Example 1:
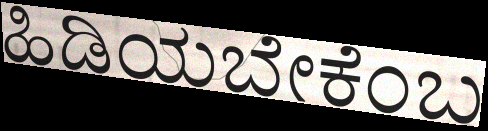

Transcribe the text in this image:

ಹಿಡಿಯಬೇಕೆಂಬ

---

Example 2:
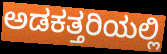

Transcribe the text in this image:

ಅಡಕತ್ತರಿಯಲ್ಲಿ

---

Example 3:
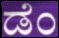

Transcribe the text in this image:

ಡೆಂ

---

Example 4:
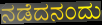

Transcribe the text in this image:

ನಡೆದನಂದು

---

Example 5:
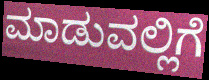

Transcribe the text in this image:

ಮಾಡುವಲ್ಲಿಗೆ